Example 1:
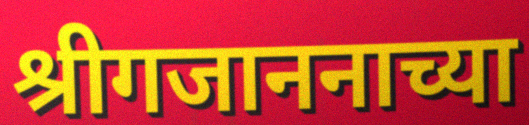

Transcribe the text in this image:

श्रीगजाननाच्या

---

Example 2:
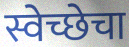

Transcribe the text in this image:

स्वेच्छेचा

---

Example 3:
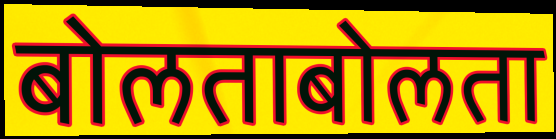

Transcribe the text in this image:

बोलताबोलता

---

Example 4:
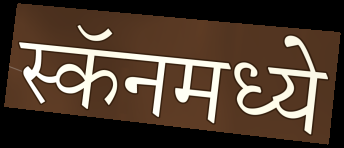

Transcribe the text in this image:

स्कॅनमध्ये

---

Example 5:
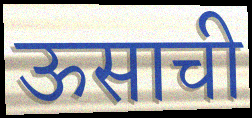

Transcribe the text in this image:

ऊसाची